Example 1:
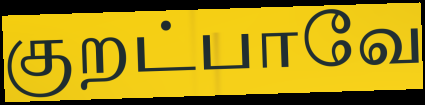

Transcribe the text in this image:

குறட்பாவே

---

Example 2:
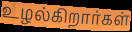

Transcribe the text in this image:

உழல்கிறார்கள்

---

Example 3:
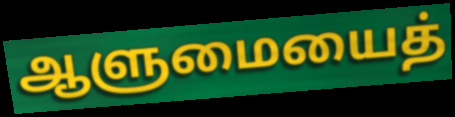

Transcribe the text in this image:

ஆளுமையைத்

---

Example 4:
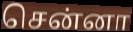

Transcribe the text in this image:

சென்னா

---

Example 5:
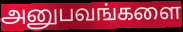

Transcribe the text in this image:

அனுபவங்களை